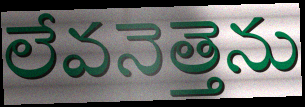
లేవనెత్తెను